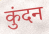
कुंदन